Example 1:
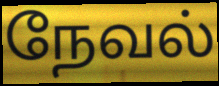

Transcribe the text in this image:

நேவல்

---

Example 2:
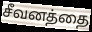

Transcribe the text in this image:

சீவனத்தை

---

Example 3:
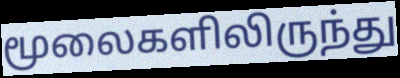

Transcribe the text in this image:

மூலைகளிலிருந்து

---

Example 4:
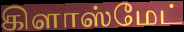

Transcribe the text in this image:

கிளாஸ்மேட்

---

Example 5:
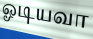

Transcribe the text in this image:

ஓடியவா